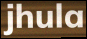
jhula